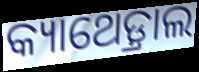
କ୍ୟାଥେଡ଼୍ରାଲ